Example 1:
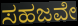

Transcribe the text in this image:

ಸಹಜವೇ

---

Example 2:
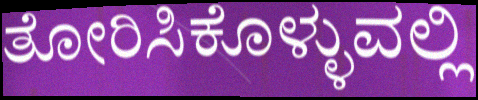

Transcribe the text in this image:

ತೋರಿಸಿಕೊಳ್ಳುವಲ್ಲಿ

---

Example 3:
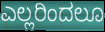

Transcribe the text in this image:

ಎಲ್ಲರಿಂದಲೂ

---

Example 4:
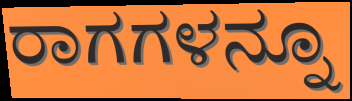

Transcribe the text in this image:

ರಾಗಗಳನ್ನೂ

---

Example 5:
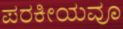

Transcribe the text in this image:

ಪರಕೀಯವೂ